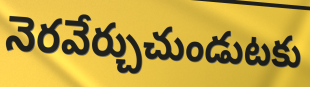
నెరవేర్చుచుండుటకు